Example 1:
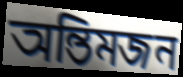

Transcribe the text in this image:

অন্তিমজন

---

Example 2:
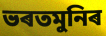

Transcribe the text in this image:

ভৰতমুনিৰ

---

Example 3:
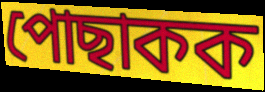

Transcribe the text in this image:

পোছাকক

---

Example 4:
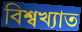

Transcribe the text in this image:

বিশ্বখ্যাত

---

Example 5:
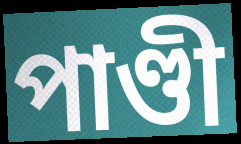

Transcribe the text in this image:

পাণ্ডী